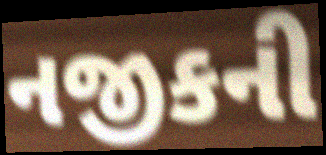
નજીકની